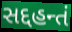
સદ્દહન્તં